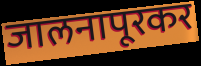
जालनापूरकर